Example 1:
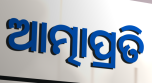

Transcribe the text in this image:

ଆତ୍ମାପ୍ରତି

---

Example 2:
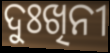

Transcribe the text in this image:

ଦୁଃଖିନୀ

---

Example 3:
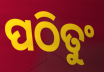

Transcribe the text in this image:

ପଠିତୁଂ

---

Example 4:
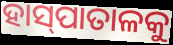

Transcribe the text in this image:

ହାସ୍‍ପାତାଳକୁ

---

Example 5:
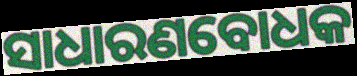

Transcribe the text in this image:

ସାଧାରଣବୋଧକ